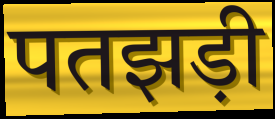
पतझड़ी